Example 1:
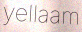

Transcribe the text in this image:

yellaam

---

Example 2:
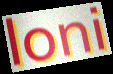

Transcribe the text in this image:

loni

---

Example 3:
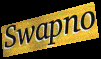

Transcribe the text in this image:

Swapno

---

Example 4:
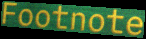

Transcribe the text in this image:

Footnote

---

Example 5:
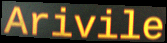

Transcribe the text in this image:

Arivile